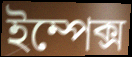
ইম্পেক্স